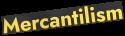
Mercantilism